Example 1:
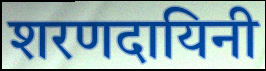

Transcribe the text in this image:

शरणदायिनी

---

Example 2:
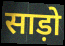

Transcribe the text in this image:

साड़ो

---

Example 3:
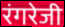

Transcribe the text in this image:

रंगरेजी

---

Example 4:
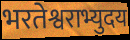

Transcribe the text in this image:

भरतेश्वराभ्युदय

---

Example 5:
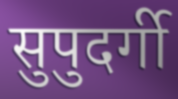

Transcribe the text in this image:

सुपुदर्गी